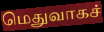
மெதுவாகச்